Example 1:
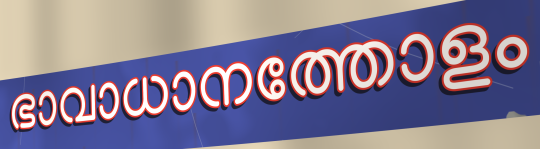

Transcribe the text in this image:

ഭാവാധാനത്തോളം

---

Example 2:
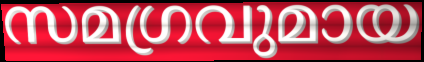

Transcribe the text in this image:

സമഗ്രവുമായ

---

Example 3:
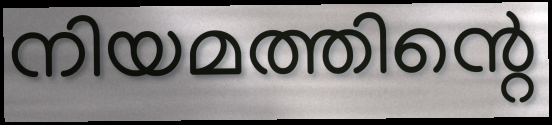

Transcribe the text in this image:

നിയമത്തിന്റെ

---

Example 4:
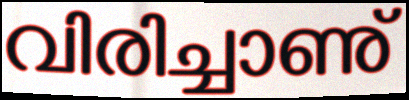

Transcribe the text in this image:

വിരിച്ചാണു്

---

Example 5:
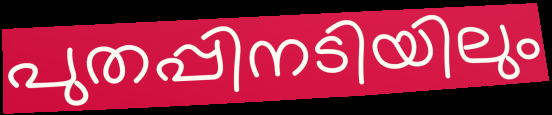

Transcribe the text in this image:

പുതപ്പിനടിയിലും